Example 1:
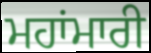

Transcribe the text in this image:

ਮਹਾਂਮਾਰੀ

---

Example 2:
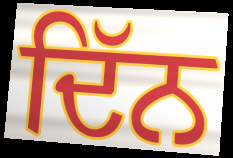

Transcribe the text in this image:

ਦਿੱਨ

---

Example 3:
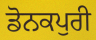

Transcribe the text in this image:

ਡੋਨਕਪੁਰੀ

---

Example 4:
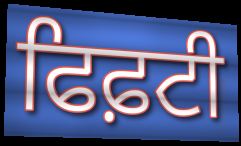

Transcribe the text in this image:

ਫਿਫ਼ਟੀ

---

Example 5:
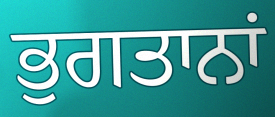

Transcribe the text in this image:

ਭੁਗਤਾਨਾਂ